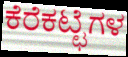
ಕೆರೆಕಟ್ಟೆಗಳ